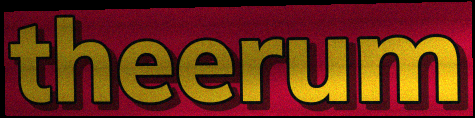
theerum